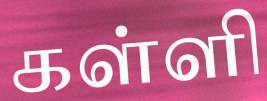
கள்ளி